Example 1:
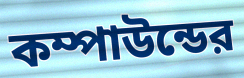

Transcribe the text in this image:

কম্পাউন্ডের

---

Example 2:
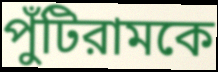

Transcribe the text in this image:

পুঁটিরামকে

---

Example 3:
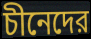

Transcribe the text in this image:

চীনেদের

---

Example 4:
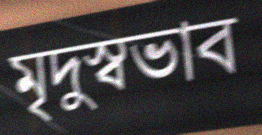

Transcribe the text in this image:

মৃদুস্বভাব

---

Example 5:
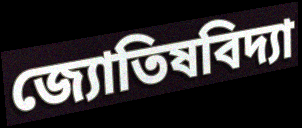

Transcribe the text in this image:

জ্যোতিষবিদ্যা